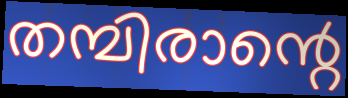
തമ്പിരാന്റെ